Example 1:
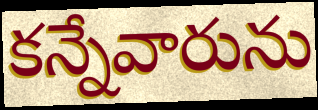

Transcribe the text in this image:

కన్నేవారును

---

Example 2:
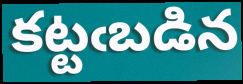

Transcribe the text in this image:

కట్టఁబడిన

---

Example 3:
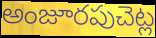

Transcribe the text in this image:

అంజూరపుచెట్ల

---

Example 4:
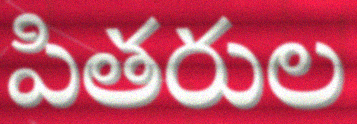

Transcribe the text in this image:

పితరుల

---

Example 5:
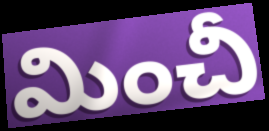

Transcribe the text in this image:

మించీ